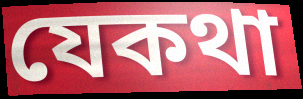
যেকথা